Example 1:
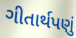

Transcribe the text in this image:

ગીતાર્થપણું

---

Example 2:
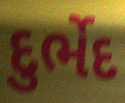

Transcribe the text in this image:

દુર્ભેદ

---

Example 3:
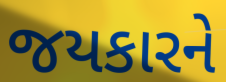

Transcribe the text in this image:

જયકારને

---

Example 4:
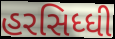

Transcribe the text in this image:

હરસિધ્ધી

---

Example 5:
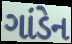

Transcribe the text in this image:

ગાંડેન